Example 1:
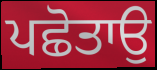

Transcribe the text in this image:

ਪਛੋਤਾਉ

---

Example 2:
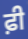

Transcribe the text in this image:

ਫ਼ੀ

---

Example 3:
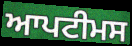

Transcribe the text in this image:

ਆਪਟੀਮਸ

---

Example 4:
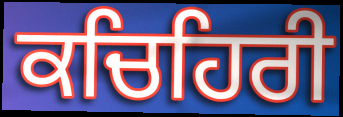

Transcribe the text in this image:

ਕਚਿਹਿਰੀ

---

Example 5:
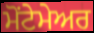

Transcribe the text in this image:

ਮੋਂਟੇਮੇਅਰ